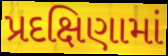
પ્રદક્ષિણામાં